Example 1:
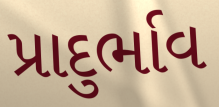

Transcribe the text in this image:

પ્રાદુર્ભાવ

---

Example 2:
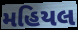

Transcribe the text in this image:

મહિયલ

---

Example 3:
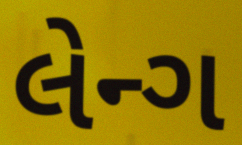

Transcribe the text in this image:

લેન્ગ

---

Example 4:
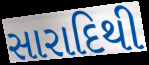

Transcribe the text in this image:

સારાદિથી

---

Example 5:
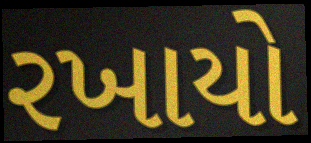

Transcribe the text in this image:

રખાયો